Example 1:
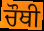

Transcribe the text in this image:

ਚੌਥੀ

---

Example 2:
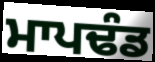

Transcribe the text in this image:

ਮਾਪਢੰਡ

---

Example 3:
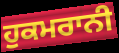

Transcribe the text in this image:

ਹੁਕਮਰਾਨੀ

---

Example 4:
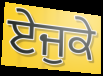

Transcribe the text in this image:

ਏਜੁਕੇ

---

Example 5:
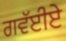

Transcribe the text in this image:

ਗਵੱਈਏ